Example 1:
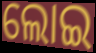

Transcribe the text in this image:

ଲୋଇ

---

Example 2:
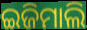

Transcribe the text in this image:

ଇଜିମାଲି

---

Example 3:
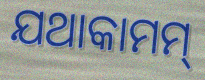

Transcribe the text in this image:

ଯଥାକାମମ୍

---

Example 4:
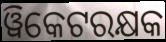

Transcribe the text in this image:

ୱିକେଟରକ୍ଷକ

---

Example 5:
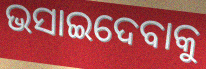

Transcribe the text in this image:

ଭସାଇଦେବାକୁ